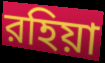
রহিয়া